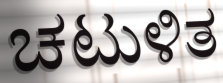
ಚಟುಳಿತ